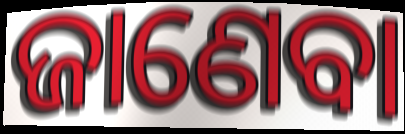
ଜାଣେବା